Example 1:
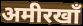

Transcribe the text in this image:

अमीरखाँ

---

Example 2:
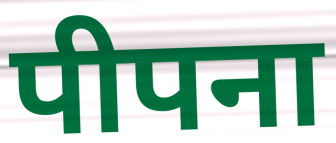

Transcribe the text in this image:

पीपना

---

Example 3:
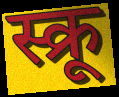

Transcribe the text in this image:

स्क्रू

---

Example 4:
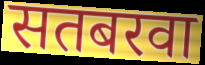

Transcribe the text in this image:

सतबरवा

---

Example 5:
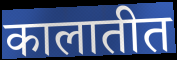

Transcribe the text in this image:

कालातीत